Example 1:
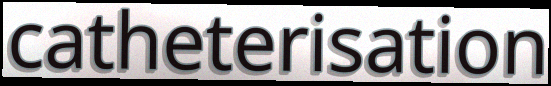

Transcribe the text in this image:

catheterisation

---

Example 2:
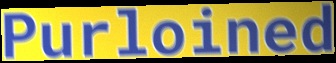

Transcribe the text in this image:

Purloined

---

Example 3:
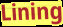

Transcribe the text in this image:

Lining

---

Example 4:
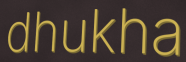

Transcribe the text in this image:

dhukha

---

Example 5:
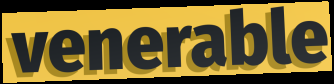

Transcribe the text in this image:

venerable